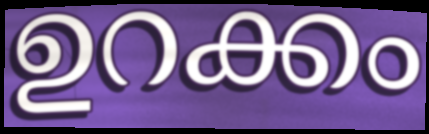
ഉറക്കം